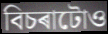
বিচৰাটোও